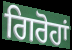
ਗਿਰੋਹਾਂ